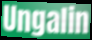
Ungalin